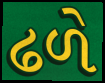
ઢળે